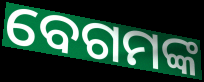
ବେଗମଙ୍କ